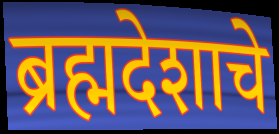
ब्रह्मदेशाचे